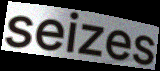
seizes